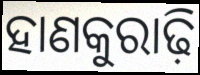
ହାଣକୁରାଢ଼ି